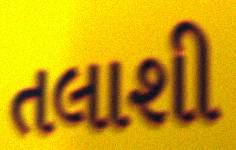
તલાશી